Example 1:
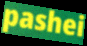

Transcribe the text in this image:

pashei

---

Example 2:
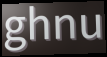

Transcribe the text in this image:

ghnu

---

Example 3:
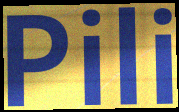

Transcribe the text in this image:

Pili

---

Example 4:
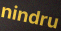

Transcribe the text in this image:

nindru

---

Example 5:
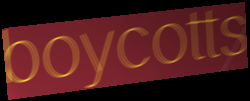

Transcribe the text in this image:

boycotts